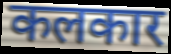
कलकार